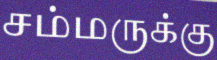
சம்மருக்கு